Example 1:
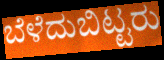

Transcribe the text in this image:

ಬೆಳೆದುಬಿಟ್ಟರು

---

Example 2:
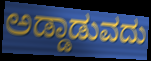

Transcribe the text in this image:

ಅಡ್ಡಾಡುವದು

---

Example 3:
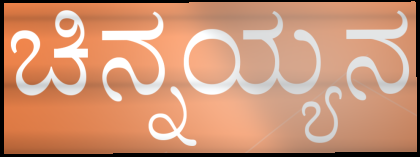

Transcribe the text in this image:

ಚಿನ್ನಯ್ಯನ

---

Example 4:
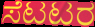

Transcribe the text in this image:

ಸೆಟಟರ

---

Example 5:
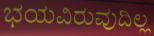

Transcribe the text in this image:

ಭಯವಿರುವುದಿಲ್ಲ